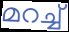
മറച്ച്